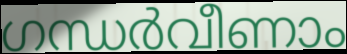
ഗന്ധർവീണാം